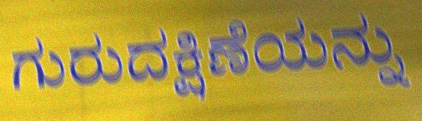
ಗುರುದಕ್ಷಿಣೆಯನ್ನು